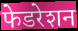
फेडरेशन